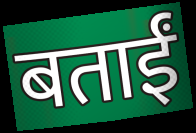
बताईं